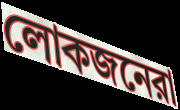
লোকজনেরা